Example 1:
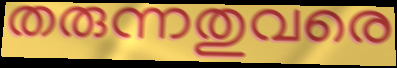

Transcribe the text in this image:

തരുന്നതുവരെ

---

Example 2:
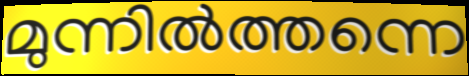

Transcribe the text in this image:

മുന്നിൽത്തന്നെ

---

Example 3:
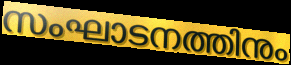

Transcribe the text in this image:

സംഘാടനത്തിനും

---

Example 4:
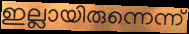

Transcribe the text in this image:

ഇല്ലായിരുന്നെന്ന്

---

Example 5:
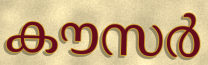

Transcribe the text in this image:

കൗസർ